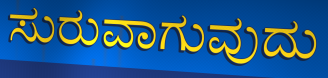
ಸುರುವಾಗುವುದು